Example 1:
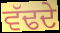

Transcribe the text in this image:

ਵੱਢਦੇ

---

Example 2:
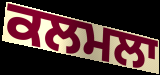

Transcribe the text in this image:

ਕਲਮਲਾ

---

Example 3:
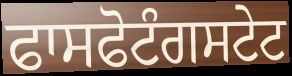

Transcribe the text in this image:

ਫਾਸਫੋਟੰਗਸਟੇਟ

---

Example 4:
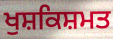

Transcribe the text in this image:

ਖੁਸ਼ਕਿਸ਼ਮਤ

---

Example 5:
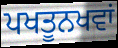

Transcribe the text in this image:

ਪਖਤੂਨਖਵਾਂ